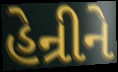
હેન્રીને